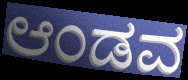
ಆಂಡವ